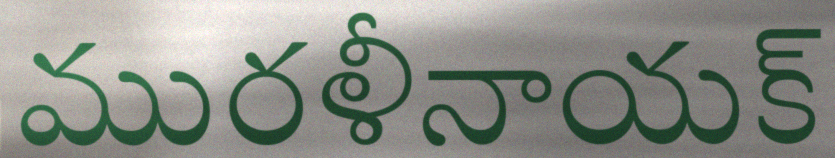
మురళీనాయక్